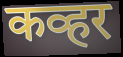
कव्हर